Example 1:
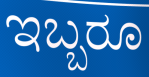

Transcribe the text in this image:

ಇಬ್ಬರೂ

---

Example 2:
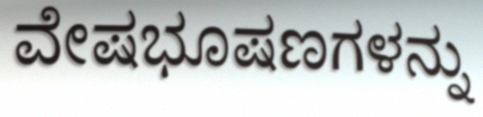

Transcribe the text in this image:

ವೇಷಭೂಷಣಗಳನ್ನು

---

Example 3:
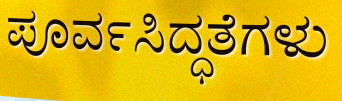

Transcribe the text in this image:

ಪೂರ್ವಸಿದ್ಧತೆಗಳು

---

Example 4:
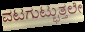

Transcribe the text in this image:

ವಟಗುಟ್ಟುತ್ತಲೇ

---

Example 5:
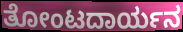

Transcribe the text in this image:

ತೋಂಟದಾರ್ಯನ